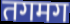
तगमग